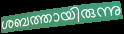
ശബത്തായിരുന്നു